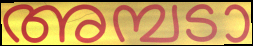
അമ്പടാ